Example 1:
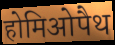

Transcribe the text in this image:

होमिओपैथ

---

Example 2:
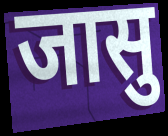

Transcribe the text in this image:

जासु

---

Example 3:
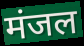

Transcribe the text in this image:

मंजल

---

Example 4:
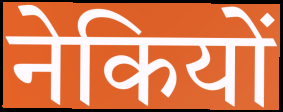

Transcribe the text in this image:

नेकियों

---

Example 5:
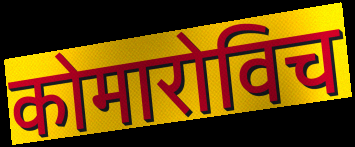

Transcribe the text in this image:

कोमारोविच